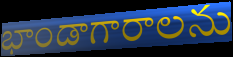
భాండాగారాలను